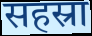
सहस्रा